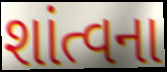
શાંત્વના